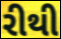
રીથી